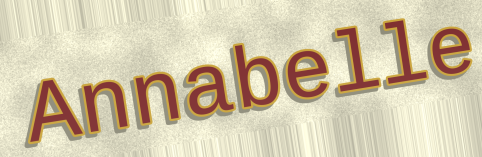
Annabelle